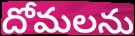
దోమలను